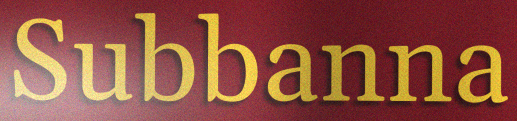
Subbanna